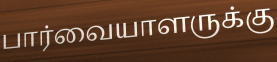
பார்வையாளருக்கு